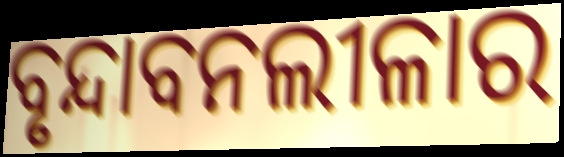
ବୃନ୍ଦାବନଲୀଳାର